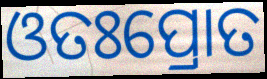
ଓତଃପ୍ରୋତ